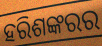
ହରିଶଙ୍କରର